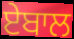
ਏਬਾਲ